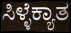
ಸಿಳ್ಳೆಕ್ಯಾತ